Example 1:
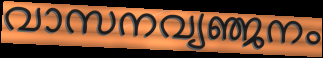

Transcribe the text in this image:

വാസനവ്യഞ്ജനം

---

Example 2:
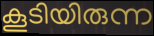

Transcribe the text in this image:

കൂടിയിരുന്ന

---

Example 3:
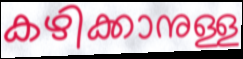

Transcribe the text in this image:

കഴിക്കാനുള്ള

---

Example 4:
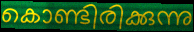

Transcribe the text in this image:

കൊണ്ടിരിക്കുന്നു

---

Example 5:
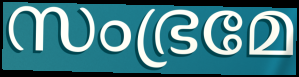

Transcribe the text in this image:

സംഭ്രമേ